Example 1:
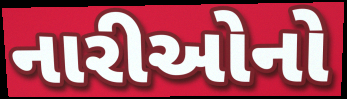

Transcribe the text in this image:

નારીઓનો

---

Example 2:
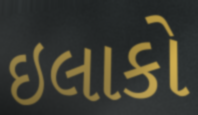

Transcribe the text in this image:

ઇલાકો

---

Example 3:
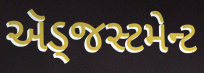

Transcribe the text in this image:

ઍડ્જસ્ટમેન્ટ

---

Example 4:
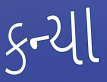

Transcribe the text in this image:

કન્યા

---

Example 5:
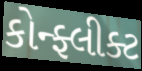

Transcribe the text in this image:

કોન્ફ્લીક્ટ